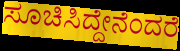
ಸೂಚಿಸಿದ್ದೇನೆಂದರೆ